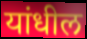
यांधील